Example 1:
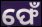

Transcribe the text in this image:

ଫେଁ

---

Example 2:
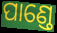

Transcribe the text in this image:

ପାଣ୍ଡେ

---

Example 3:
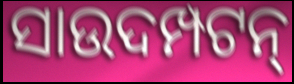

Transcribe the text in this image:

ସାଉଦମ୍ପଟନ୍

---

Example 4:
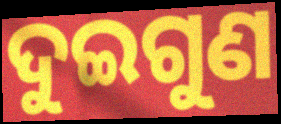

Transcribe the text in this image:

ଦୁଇଗୁଣ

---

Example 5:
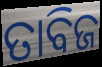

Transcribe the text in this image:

ତାବିଜ